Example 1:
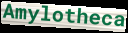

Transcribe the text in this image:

Amylotheca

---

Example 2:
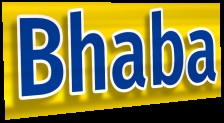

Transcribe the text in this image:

Bhaba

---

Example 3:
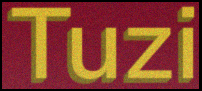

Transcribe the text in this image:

Tuzi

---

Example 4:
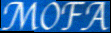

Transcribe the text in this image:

MOFA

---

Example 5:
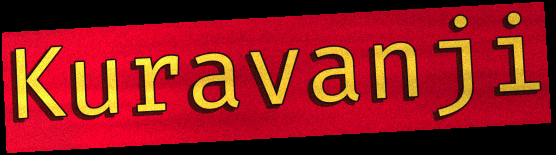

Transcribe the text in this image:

Kuravanji